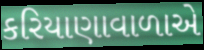
કરિયાણાવાળાએ